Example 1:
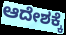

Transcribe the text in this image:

ಆದೇಶಕ್ಕೆ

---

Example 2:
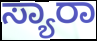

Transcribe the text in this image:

ಸ್ಯಾರಾ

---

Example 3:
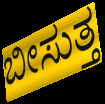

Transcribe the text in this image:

ಬೀಸುತ್ತ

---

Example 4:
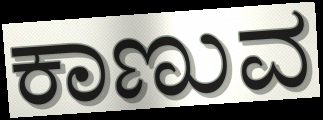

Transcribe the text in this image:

ಕಾಣುವ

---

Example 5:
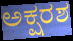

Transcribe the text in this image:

ಅಕ್ಷರಶ